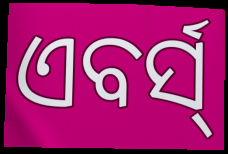
ଏବର୍ସ୍